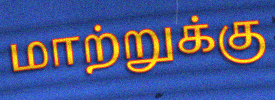
மாற்றுக்கு